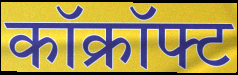
कॉक्रॉफ्ट